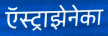
ऍस्ट्राझेनेका